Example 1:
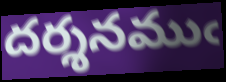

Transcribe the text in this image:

దర్శనముఁ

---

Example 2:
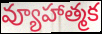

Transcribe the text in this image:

వ్యూహాత్మక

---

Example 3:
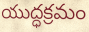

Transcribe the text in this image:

యుద్ధక్రమం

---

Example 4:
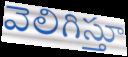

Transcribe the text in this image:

వెలిగిస్తూ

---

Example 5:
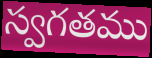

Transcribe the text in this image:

స్వగతము